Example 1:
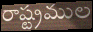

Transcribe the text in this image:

రాష్ట్రముల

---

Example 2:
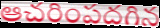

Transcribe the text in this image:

ఆచరింపదగిన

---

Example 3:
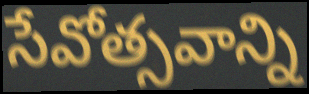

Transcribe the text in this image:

సేవోత్సవాన్ని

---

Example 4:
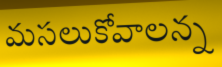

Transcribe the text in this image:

మసలుకోవాలన్న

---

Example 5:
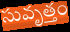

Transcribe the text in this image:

సువృత్తం